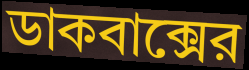
ডাকবাক্সের